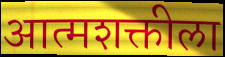
आत्मशक्तीला